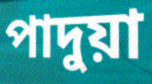
পাদুয়া